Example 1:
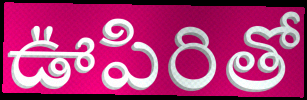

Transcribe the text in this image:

ఊపిరితో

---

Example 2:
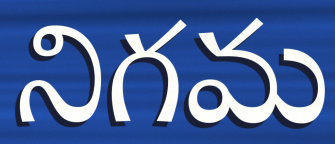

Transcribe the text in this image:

నిగమ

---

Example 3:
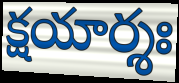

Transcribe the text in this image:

క్షయార్శః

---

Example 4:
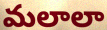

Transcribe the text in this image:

మలాలా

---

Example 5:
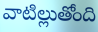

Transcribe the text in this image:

వాటిల్లుతోంది